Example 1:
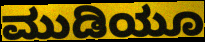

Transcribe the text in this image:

ಮುಡಿಯೂ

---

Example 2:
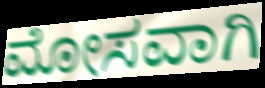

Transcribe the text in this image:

ಮೋಸವಾಗಿ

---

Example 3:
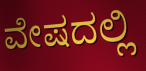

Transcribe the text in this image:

ವೇಷದಲ್ಲಿ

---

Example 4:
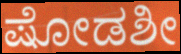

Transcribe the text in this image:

ಷೋಡಶೀ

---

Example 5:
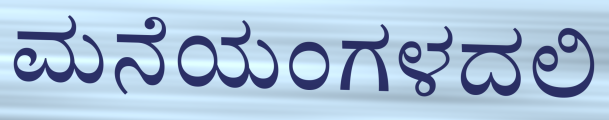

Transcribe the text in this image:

ಮನೆಯಂಗಳದಲಿ